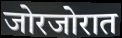
जोरजोरात